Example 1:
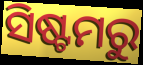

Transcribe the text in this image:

ସିଷ୍ଟମରୁ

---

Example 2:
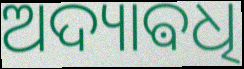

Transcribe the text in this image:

ଅଦ୍ୟାଵଧି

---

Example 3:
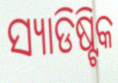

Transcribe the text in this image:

ସ୍ୟାଡିଷ୍ଟିକ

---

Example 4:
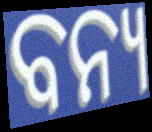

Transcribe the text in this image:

ବନ୍ୟ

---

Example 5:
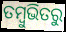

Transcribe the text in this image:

ତମ୍ବୁଭିତରୁ